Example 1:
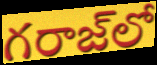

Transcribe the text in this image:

గరాజ్‌లో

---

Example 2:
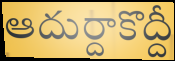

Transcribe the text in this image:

ఆదుర్దాకొద్దీ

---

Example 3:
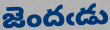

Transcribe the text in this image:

జెందఁడు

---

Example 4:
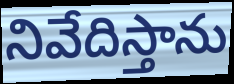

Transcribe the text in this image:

నివేదిస్తాను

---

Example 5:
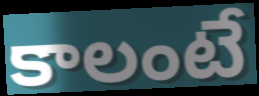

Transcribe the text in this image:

కాలంటే